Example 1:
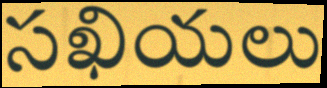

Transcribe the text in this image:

సఖియలు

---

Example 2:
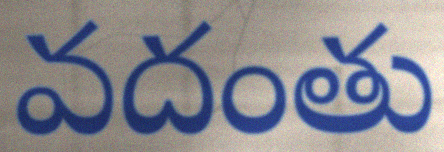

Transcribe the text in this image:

వదంతు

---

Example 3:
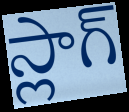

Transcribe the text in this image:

స్లాగ్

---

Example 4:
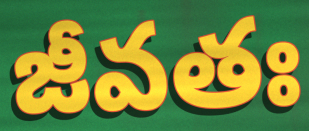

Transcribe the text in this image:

జీవతః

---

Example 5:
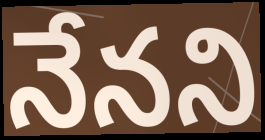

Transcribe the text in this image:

నేనని